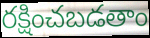
రక్షించబడతాం